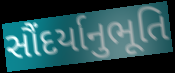
સૌંદર્યાનુભૂતિ